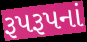
રૂપરૂપનાં